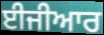
ਈਜੀਆਰ